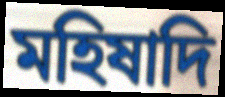
মহিষাদি